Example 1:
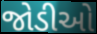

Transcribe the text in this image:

જોડીઓ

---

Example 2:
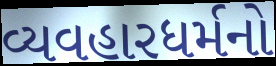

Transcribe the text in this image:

વ્યવહારધર્મનો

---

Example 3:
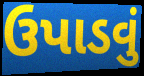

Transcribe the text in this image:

ઉપાડવું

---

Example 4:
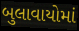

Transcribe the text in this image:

બુલાવાયોમાં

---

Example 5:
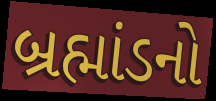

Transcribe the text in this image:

બ્રહ્માંડનો